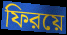
ফিরয়ে